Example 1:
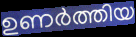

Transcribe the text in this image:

ഉണർത്തിയ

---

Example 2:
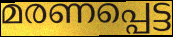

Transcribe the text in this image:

മരണപ്പെട്ട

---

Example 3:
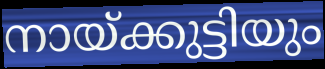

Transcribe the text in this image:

നായ്ക്കുട്ടിയും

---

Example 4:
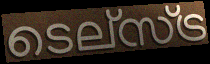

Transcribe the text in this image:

ടെല്സ്ട്ര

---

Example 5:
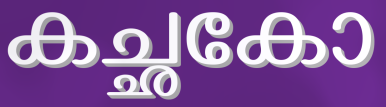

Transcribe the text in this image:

കച്ഛകോ